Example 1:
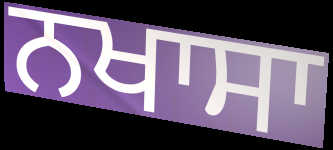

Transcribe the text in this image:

ਨਖਾਸਾ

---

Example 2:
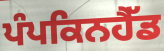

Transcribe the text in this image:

ਪੰਪਕਿਨਹੈੱਡ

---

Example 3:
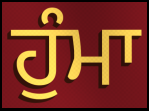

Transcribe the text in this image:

ਹੁੰਮਾ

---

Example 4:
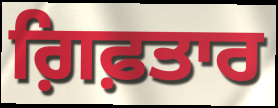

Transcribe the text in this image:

ਗ਼ਿਫ਼ਤਾਰ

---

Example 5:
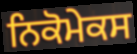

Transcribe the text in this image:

ਨਿਕੋਮੇਕਸ